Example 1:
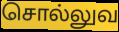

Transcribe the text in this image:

சொல்லுவ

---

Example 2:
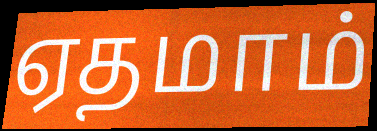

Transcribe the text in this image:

ஏதமாம்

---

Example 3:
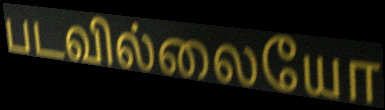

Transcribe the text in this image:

படவில்லையோ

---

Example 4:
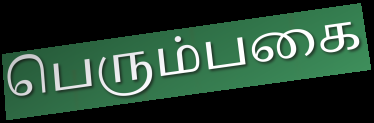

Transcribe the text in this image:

பெரும்பகை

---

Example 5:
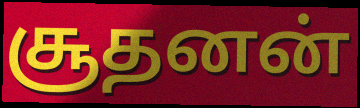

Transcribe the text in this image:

சூதனன்